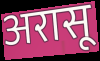
अरासू